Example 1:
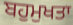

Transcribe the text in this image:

ਬਹੁਮੁਖਤਾ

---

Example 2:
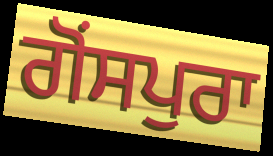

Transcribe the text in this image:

ਗੋਂਸਪੁਰਾ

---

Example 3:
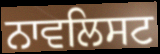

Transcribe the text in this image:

ਨਾਵਲਿਸਟ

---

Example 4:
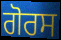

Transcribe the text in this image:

ਗੋਰਸ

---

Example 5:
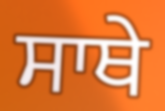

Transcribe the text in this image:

ਸਾਥੇ